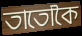
তাতোকৈ